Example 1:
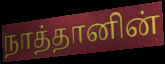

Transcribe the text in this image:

நாத்தானின்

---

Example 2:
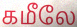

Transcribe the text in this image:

கமீலே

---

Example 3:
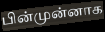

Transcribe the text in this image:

பின்முன்னாக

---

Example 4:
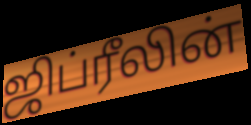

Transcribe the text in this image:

ஜிப்ரீலின்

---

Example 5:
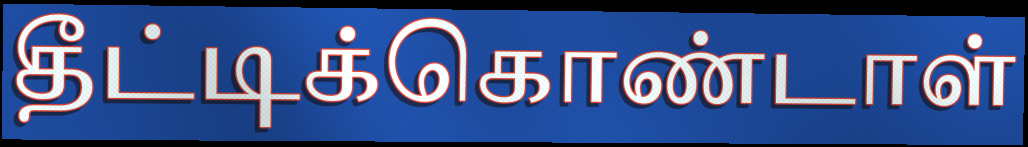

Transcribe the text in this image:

தீட்டிக்கொண்டாள்